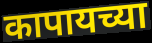
कापायच्या